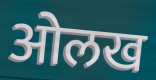
ओलख